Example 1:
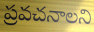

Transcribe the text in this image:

ప్రవచనాలని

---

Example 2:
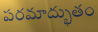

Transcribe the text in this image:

పరమాద్భుతం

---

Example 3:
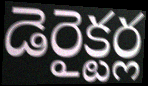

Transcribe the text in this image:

డెరైక్టర్ల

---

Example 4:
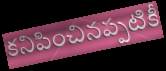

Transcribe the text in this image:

కనిపించినప్పటికీ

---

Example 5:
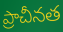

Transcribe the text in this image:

ప్రాచీనత